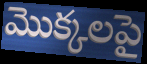
మొక్కలపై